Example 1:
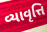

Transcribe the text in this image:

વ્યાવૃત્તિ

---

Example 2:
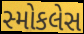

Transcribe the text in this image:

સ્મોકલેસ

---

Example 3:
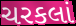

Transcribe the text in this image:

ચરકલાં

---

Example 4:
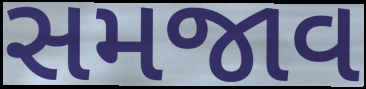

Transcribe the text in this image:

સમજાવ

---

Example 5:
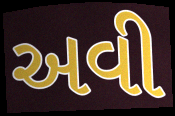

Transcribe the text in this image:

અવી